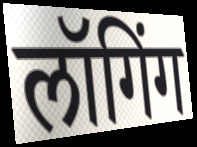
लॉगिंग